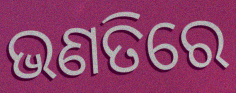
ଭଣତିରେ